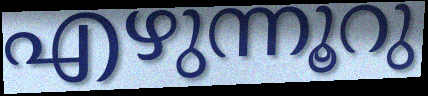
എഴുന്നൂറു